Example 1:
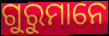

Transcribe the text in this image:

ଗୁରୁମାନେ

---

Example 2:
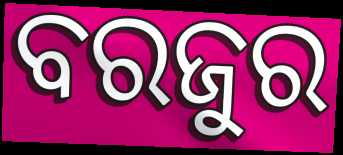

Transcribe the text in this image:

ବରଜୁର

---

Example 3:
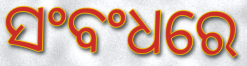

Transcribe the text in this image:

ସଂବଂଧରେ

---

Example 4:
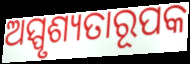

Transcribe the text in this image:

ଅସ୍ପୃଶ୍ୟତାରୂପକ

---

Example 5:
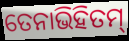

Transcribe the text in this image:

ତେନାଭିହିତମ୍